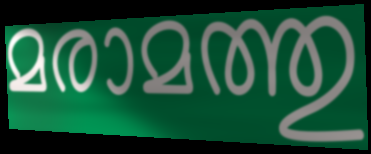
മരാമത്തു